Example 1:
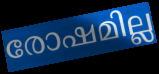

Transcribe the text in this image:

രോഷമില്ല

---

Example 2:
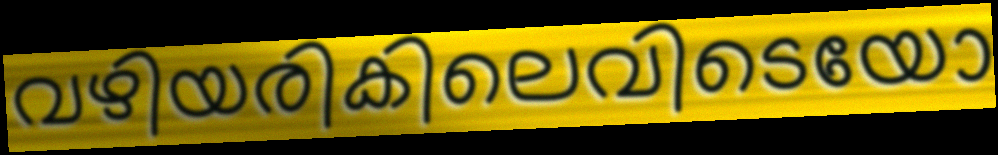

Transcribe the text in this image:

വഴിയരികിലെവിടെയോ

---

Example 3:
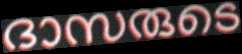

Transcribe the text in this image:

ദാസരുടെ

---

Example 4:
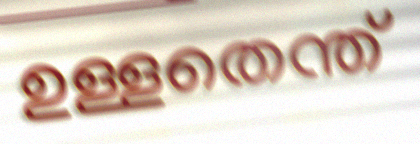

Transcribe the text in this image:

ഉള്ളതെന്ത്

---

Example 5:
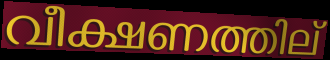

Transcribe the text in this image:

വീക്ഷണത്തില്